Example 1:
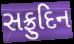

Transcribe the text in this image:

સફ્રુદિન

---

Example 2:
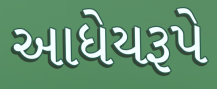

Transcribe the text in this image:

આધેયરૂપે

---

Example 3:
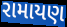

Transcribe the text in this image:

રામાયણ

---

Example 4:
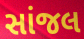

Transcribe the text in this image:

સાંજલ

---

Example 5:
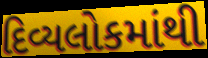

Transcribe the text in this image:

દિવ્યલોકમાંથી